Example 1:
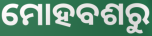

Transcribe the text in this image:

ମୋହବଶରୁ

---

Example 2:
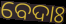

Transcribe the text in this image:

ବେଦାଃ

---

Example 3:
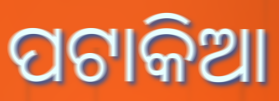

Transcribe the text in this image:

ପଟାକିଆ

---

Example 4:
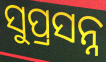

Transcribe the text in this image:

ସୁପ୍ରସନ୍ନ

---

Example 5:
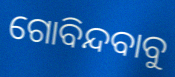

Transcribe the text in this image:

ଗୋବିନ୍ଦବାବୁ